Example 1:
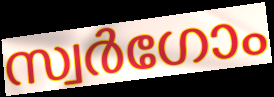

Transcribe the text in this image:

സ്വർഗോം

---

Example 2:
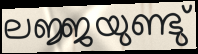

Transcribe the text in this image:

ലജ്ജയുണ്ടു്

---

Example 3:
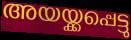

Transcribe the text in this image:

അയയ്ക്കപ്പെട്ടു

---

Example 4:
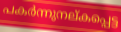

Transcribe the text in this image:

പകർന്നുനല്കപ്പെട്ട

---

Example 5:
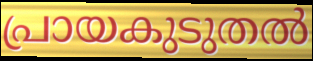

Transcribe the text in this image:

പ്രായകുടുതൽ